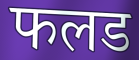
फलड